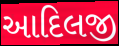
આદિલજી